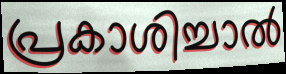
പ്രകാശിച്ചാൽ